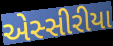
એસ્સીરીયા